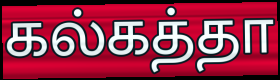
கல்கத்தா